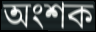
অংশক